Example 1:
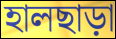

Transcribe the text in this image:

হালছাড়া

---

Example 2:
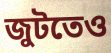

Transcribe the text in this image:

জুটতেও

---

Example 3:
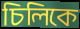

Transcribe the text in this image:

চিলিকে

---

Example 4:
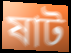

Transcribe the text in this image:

ষাট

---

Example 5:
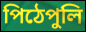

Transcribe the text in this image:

পিঠেপুলি